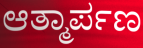
ಆತ್ಮಾರ್ಪಣ